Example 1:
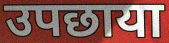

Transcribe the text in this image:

उपछाया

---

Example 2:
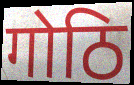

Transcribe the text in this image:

गोठि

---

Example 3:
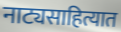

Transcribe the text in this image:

नाट्यसाहित्यात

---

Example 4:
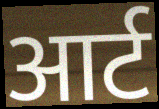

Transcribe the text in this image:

आर्ट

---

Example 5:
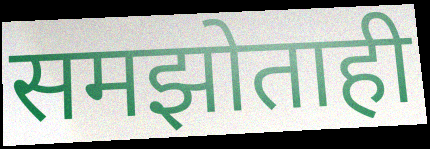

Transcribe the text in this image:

समझोताही